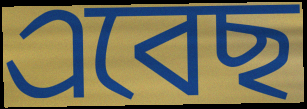
এবেছ